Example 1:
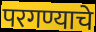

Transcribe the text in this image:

परगण्याचे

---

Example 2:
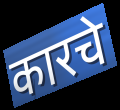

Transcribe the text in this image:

कारचे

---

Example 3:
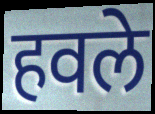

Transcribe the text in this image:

हवले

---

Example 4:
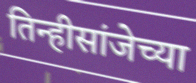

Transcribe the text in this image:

तिन्हीसांजेच्या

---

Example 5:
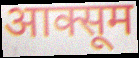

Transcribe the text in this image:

आक्सूम